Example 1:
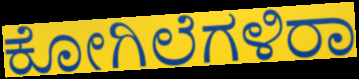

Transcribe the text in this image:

ಕೋಗಿಲೆಗಳಿರಾ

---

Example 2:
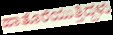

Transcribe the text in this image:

ಹಾತೊರೆಯುತ್ತಿದ್ದಳು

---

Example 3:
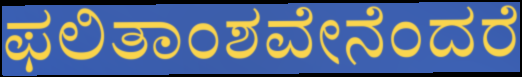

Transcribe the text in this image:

ಫಲಿತಾಂಶವೇನೆಂದರೆ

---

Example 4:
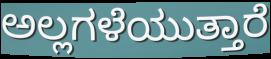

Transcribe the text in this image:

ಅಲ್ಲಗಳೆಯುತ್ತಾರೆ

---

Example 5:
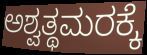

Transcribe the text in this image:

ಅಶ್ವತ್ಥಮರಕ್ಕೆ